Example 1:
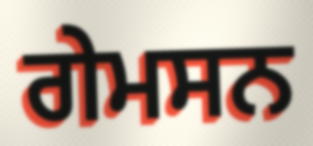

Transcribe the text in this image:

ਗੇਮਸਨ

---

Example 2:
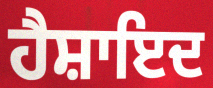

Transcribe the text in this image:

ਹੈਸ਼ਾਇਦ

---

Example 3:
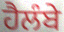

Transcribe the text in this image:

ਹੈਲੰਬੇ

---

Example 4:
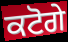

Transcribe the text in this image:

ਕਟੋਗੇ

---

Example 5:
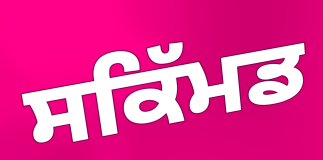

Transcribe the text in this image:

ਸਕਿੱਮਡ